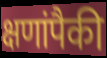
क्षणांपैकी